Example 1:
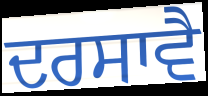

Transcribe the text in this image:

ਦਰਸਾਵੈ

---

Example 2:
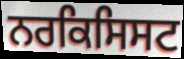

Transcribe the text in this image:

ਨਰਕਿਸਿਸਟ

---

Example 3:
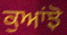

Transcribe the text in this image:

ਕੁਆਂਝੋ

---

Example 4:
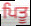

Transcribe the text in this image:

ਪਿਤੂ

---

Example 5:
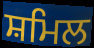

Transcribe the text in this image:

ਸ਼ਮਿਲ